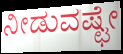
ನೀಡುವಷ್ಟೇ